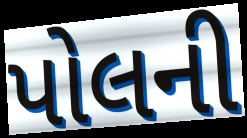
પોલની